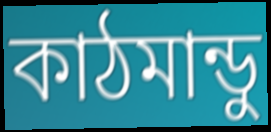
কাঠমান্ডু